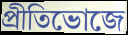
প্রীতিভোজে